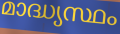
മാദ്ധ്യസ്ഥം